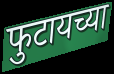
फुटायच्या